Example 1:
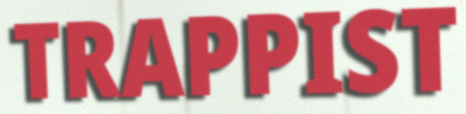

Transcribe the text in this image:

TRAPPIST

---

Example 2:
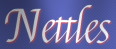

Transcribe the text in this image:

Nettles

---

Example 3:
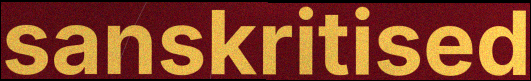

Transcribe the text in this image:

sanskritised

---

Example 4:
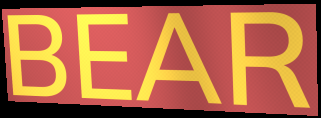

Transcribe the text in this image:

BEAR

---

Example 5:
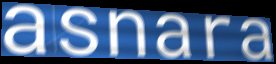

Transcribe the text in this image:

asnara